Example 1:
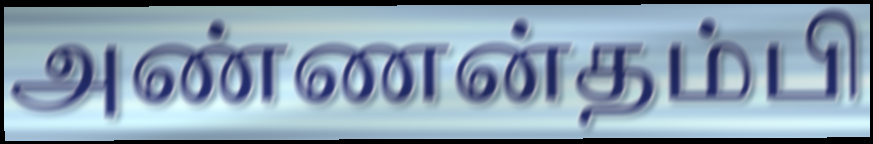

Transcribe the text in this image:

அண்ணன்தம்பி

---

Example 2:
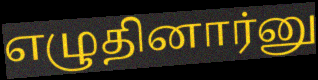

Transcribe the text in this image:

எழுதினார்னு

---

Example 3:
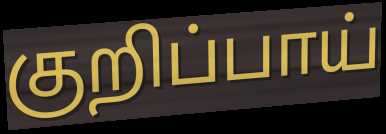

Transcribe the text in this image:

குறிப்பாய்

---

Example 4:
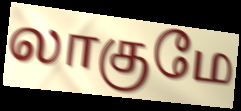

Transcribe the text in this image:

லாகுமே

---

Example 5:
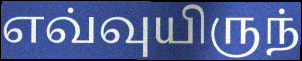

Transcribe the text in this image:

எவ்வுயிருந்